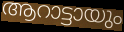
ആറാട്ടായും